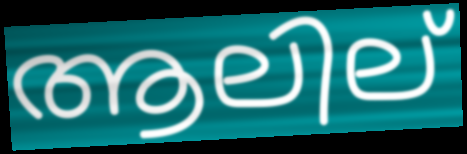
ആലില്